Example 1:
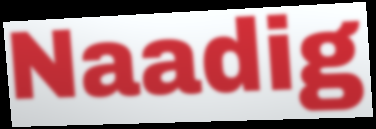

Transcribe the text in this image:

Naadig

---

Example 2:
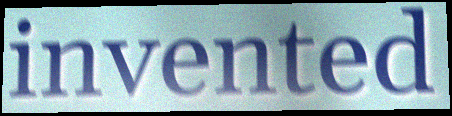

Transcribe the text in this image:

invented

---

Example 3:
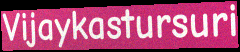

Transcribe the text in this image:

Vijaykastursuri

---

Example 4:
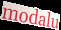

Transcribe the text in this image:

modalu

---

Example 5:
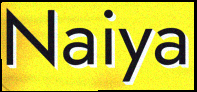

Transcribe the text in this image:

Naiya